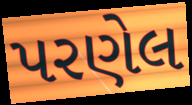
પરણેલ